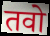
तवो